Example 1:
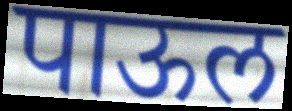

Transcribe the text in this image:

पाऊल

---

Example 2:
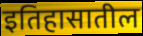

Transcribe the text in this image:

इतिहासातील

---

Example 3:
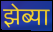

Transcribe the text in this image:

झेब्या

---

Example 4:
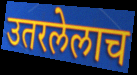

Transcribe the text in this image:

उतरलेलाच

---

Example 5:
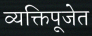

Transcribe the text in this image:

व्यक्तिपूजेत